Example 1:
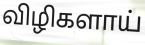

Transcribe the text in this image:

விழிகளாய்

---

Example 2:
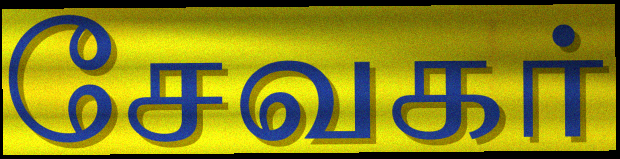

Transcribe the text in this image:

சேவகர்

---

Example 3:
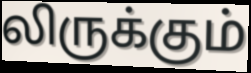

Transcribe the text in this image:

லிருக்கும்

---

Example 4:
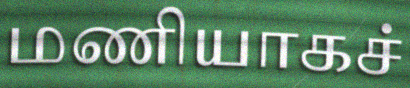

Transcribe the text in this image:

மணியாகச்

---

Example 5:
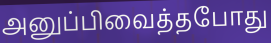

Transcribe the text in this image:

அனுப்பிவைத்தபோது